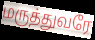
மருத்துவரே